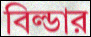
বিল্ডার